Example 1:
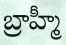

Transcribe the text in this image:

బ్రాహ్మీ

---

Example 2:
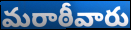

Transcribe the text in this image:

మరాఠీవారు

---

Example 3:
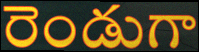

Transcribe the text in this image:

రెండుగా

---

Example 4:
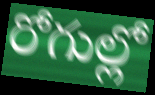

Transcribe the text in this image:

రోగుల్లో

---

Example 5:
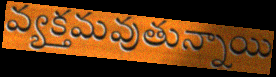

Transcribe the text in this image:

వ్యక్తమవుతున్నాయి